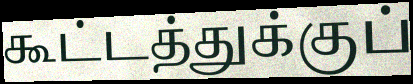
கூட்டத்துக்குப்